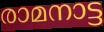
രാമനാട്ട